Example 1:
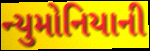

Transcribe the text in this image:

ન્યુમોનિયાની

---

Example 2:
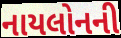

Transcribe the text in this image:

નાયલોનની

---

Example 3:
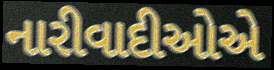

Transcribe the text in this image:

નારીવાદીઓએ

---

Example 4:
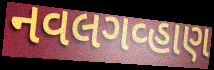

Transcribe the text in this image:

નવલગવ્હાણ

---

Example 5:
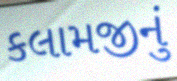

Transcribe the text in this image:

કલામજીનું